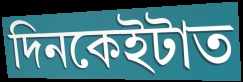
দিনকেইটাত